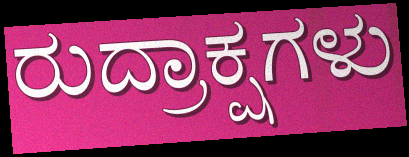
ರುದ್ರಾಕ್ಷಗಳು